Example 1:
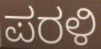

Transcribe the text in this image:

ಪರಳಿ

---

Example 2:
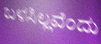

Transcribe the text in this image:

ಬಳಸಿಲ್ಲವೆಂದು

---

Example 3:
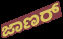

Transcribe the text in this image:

ಜಾಣರ್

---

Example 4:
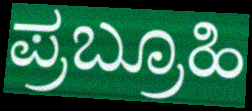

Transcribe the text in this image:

ಪ್ರಬ್ರೂಹಿ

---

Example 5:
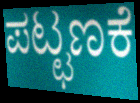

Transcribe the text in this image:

ಪಟ್ಟಣಕೆ